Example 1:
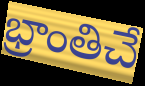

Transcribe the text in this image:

భ్రాంతిచే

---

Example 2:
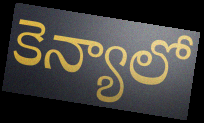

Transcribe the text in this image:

కెన్యాలో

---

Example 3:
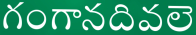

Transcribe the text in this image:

గంగానదివలె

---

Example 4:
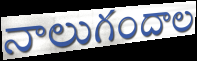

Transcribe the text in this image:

నాలుగందాల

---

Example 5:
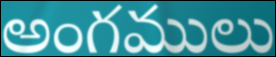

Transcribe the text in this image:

అంగములు